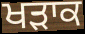
ਖੜਾਕ